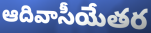
ఆదివాసీయేతర